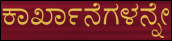
ಕಾರ್ಖಾನೆಗಳನ್ನೇ